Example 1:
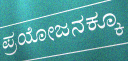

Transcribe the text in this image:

ಪ್ರಯೋಜನಕ್ಕೂ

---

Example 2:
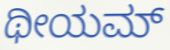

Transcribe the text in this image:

ಥೀಯಮ್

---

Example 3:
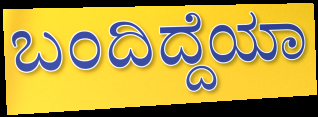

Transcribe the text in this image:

ಬಂದಿದ್ದೆಯಾ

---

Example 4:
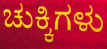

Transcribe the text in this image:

ಚುಕ್ಕಿಗಳು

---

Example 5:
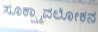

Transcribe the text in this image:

ಸೂಕ್ಷ್ಮಾವಲೋಕನ